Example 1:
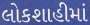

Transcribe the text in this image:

લોકશાહીમાં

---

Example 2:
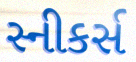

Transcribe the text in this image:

સ્નીકર્સ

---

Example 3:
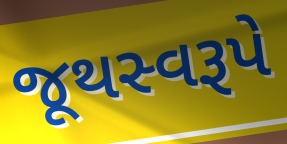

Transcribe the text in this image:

જૂથસ્વરૂપે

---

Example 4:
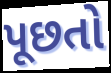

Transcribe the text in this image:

પૂછતો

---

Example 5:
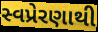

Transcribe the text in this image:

સ્વપ્રેરણાથી